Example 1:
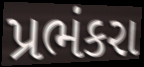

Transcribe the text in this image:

પ્રભંકરા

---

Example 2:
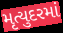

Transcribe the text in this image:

મૃત્યુદરમાં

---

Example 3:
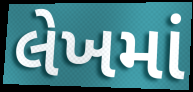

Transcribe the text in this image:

લેખમાં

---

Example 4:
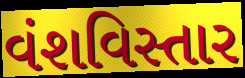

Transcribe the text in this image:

વંશવિસ્તાર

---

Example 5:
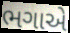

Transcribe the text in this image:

ભગાએ